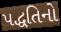
પદ્ધતિનો